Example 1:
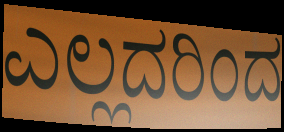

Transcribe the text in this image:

ಎಲ್ಲದರಿಂದ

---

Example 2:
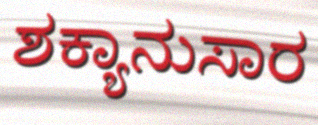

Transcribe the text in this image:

ಶಕ್ಯಾನುಸಾರ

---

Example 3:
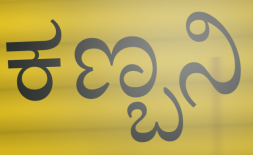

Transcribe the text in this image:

ಕಣ್ಬನಿ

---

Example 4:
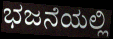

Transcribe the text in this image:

ಭಜನೆಯಲ್ಲಿ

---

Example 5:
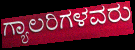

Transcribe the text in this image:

ಗ್ಯಾಲರಿಗಳವರು